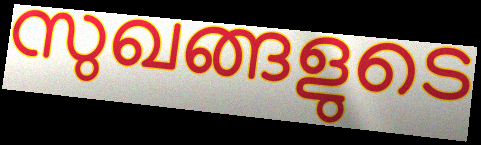
സുഖങ്ങളുടെ